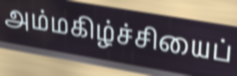
அம்மகிழ்ச்சியைப்